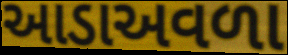
આડાઅવળા